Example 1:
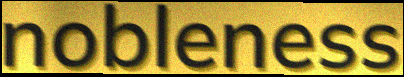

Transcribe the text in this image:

nobleness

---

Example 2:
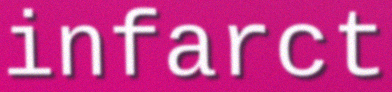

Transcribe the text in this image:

infarct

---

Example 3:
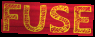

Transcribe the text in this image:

FUSE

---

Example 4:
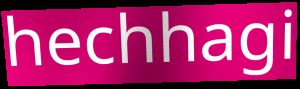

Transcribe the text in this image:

hechhagi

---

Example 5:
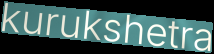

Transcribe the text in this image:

kurukshetra